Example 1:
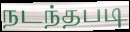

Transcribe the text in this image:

நடந்தபடி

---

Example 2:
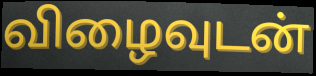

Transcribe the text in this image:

விழைவுடன்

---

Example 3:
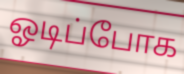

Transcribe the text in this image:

ஓடிப்போக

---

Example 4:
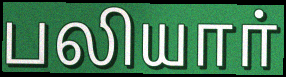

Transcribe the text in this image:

பலியார்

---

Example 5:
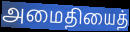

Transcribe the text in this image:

அமைதியைத்